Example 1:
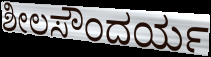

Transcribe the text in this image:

ಶೀಲಸೌಂದರ್ಯ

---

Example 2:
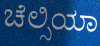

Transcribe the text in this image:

ಚೆಲ್ಸಿಯಾ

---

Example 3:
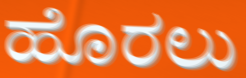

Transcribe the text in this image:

ಹೊರಲು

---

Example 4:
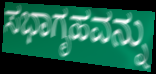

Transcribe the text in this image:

ಸಭಾಗೃಹವನ್ನು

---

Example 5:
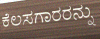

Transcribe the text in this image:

ಕೆಲಸಗಾರರನ್ನು